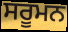
ਸਰੂਮਨ